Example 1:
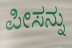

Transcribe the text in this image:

ಪೀಸನ್ನು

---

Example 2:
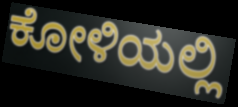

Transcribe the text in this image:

ಕೋಳಿಯಲ್ಲಿ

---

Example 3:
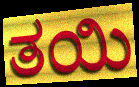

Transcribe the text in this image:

ತಯಿ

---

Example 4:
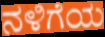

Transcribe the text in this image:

ನಳಿಗೆಯ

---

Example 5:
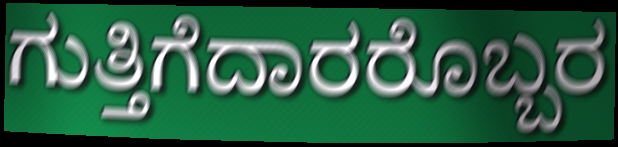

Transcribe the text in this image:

ಗುತ್ತಿಗೆದಾರರೊಬ್ಬರ